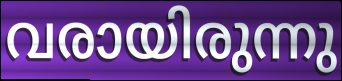
വരായിരുന്നു